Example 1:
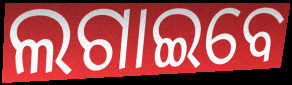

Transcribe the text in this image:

ଲଗାଇବେ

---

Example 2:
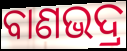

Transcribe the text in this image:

ବାଣଭଦ୍ର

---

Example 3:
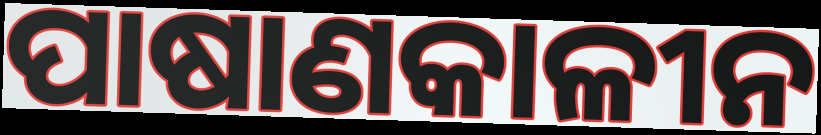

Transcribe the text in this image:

ପାଷାଣକାଳୀନ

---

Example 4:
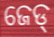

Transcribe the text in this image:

ଜେଡ୍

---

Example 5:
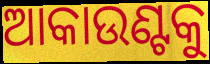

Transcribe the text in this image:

ଆକାଉଣ୍ଟକୁ